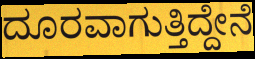
ದೂರವಾಗುತ್ತಿದ್ದೇನೆ